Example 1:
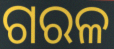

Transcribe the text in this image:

ଗରଳ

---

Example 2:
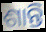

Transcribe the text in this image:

ଶାନ୍ତି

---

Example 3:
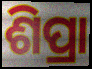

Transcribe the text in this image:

ଶିପ୍ରା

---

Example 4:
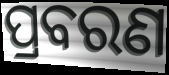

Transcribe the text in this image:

ପ୍ରବରଣ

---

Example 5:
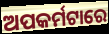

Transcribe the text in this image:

ଅପକର୍ମଟାରେ